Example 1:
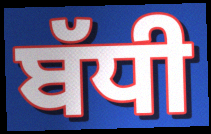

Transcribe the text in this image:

ਬੱਧੀ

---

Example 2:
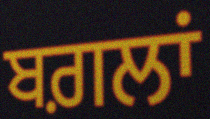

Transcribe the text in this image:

ਬਗ਼ਲਾਂ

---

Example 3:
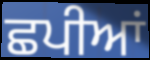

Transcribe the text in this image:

ਛਪੀਆਂ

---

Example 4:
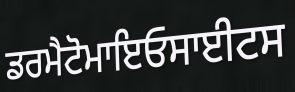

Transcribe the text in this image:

ਡਰਮੈਟੋਮਾਇਓਸਾਈਟਸ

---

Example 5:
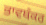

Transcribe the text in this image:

ਭਾਵਥੰਕਰ